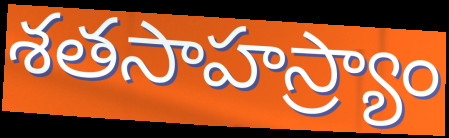
శతసాహస్ర్యాం